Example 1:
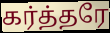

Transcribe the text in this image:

கர்த்தரே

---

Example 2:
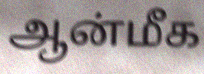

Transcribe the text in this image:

ஆன்மீக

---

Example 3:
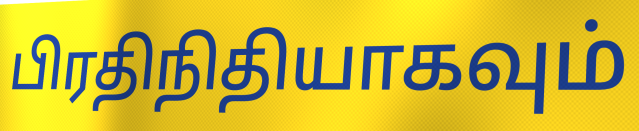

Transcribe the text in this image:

பிரதிநிதியாகவும்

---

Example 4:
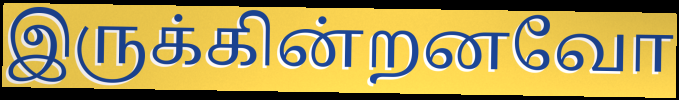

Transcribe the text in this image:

இருக்கின்றனவோ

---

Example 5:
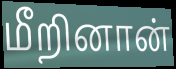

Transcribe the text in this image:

மீறினான்